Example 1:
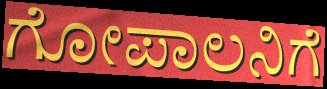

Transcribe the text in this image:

ಗೋಪಾಲನಿಗೆ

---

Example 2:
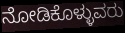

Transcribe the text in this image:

ನೋಡಿಕೊಳ್ಳುವರು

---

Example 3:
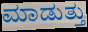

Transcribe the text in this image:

ಮಾಡುತ್ತು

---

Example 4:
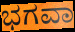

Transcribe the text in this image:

ಭಗವಾ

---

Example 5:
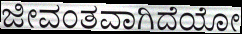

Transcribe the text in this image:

ಜೀವಂತವಾಗಿದೆಯೋ